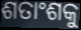
ଶତାଂଶକୁ